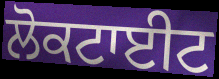
ਲੋਕਟਾਈਟ